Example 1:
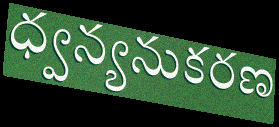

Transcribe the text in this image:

ధ్వన్యనుకరణ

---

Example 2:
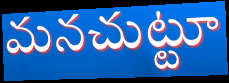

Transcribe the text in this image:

మనచుట్టూ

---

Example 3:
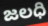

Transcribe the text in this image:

జలధి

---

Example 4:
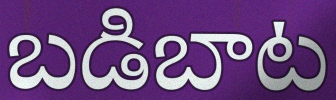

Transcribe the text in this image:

బడిబాట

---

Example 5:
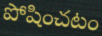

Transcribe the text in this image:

పోషించటం